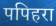
पपिहरा